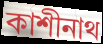
কাশীনাথ